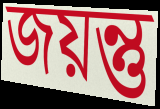
জয়ন্তু